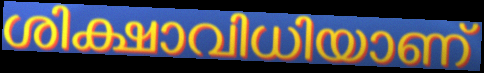
ശിക്ഷാവിധിയാണ്